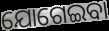
ଯୋଗେଇବା